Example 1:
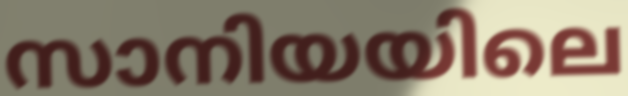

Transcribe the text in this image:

സാനിയയിലെ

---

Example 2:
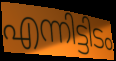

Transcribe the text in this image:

എന്നിട്ടിടം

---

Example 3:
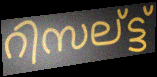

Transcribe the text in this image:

റിസല്ട്ട്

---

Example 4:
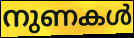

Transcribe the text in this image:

നുണകൾ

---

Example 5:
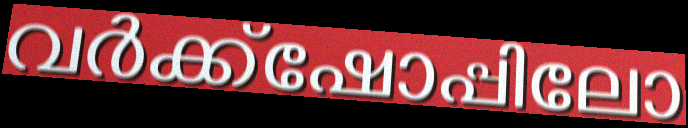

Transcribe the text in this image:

വർക്ക്ഷോപ്പിലോ